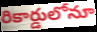
రికార్డులోనూ